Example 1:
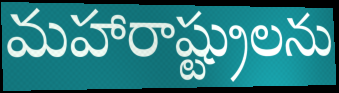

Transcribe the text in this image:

మహారాష్ట్రులను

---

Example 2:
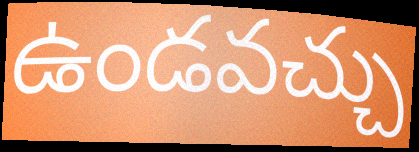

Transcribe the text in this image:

ఉండవచ్చు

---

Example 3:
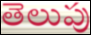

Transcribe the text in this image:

తెలుపు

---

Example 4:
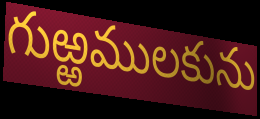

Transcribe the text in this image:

గుఱ్ఱములకును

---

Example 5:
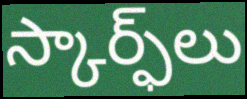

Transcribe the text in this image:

స్కార్ఫ్‌లు